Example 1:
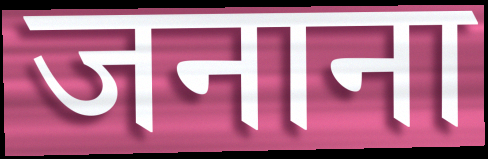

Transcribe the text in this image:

जनाना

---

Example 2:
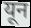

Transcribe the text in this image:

यून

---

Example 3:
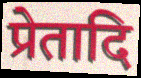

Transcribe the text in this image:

प्रेतादि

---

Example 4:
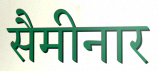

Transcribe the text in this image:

सैमीनार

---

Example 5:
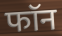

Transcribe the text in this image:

फॉन